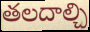
తలదాల్చి